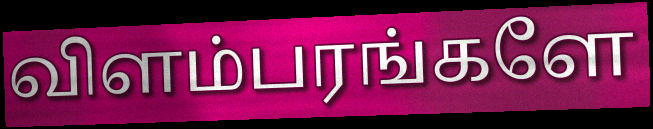
விளம்பரங்களே